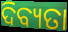
ଦିବ୍ୟତା